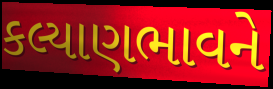
કલ્યાણભાવને